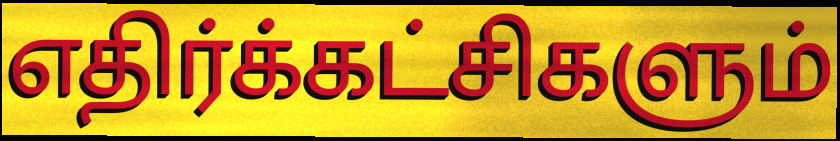
எதிர்க்கட்சிகளும்